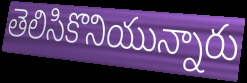
తెలిసికొనియున్నారు